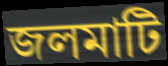
জলমাটি